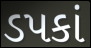
ડપકાં